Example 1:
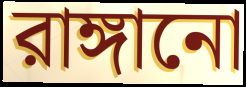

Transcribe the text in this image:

রাঙ্গানো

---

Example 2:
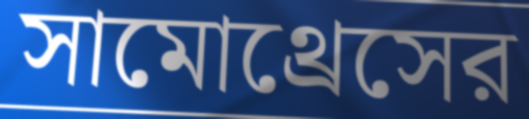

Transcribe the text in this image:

সামোথ্রেসের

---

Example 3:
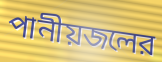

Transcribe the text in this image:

পানীয়জলের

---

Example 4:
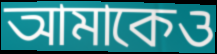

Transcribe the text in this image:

আমাকেও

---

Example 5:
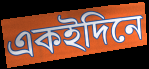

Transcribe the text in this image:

একইদিনে